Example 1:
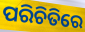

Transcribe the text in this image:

ପରିଚିତିରେ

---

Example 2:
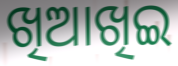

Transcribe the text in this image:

ଖିଆଖିଇ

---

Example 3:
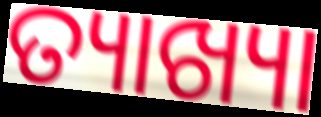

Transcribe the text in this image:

ତ୍ୟାଖ୍ୟା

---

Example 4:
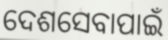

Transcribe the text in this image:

ଦେଶସେବାପାଇଁ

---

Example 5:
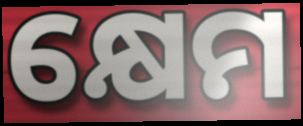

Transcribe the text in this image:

କ୍ଷେମ